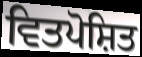
ਵਿਤਪੋਸ਼ਿਤ